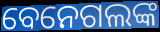
ବେନେଗଲଙ୍କ